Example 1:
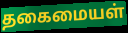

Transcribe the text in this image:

தகைமையள்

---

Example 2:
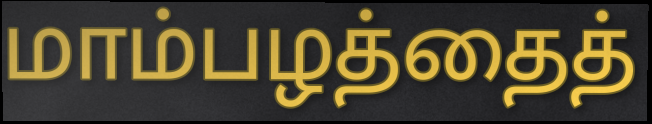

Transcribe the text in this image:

மாம்பழத்தைத்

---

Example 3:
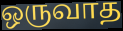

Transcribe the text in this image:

ஒருவாத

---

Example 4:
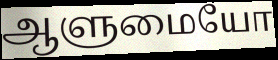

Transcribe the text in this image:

ஆளுமையோ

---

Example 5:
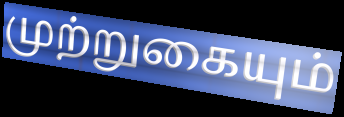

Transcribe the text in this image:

முற்றுகையும்